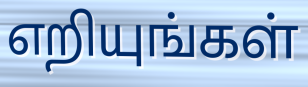
எறியுங்கள்